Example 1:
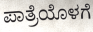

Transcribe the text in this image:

ಪಾತ್ರೆಯೊಳಗೆ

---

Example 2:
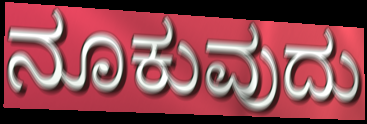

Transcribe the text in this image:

ನೂಕುವುದು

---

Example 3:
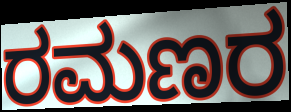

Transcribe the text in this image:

ರಮಣರ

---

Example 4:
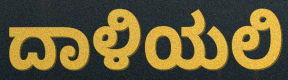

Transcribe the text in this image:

ದಾಳಿಯಲಿ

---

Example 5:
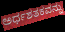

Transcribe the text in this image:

ಅರ್ಧಶತಕವನ್ನು